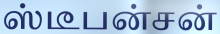
ஸ்டீபன்சன்